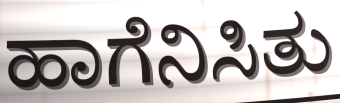
ಹಾಗೆನಿಸಿತು